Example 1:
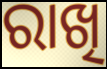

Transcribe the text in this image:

ରାଖି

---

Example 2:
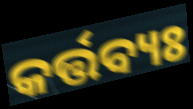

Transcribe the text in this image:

କର୍ତ୍ତବ୍ୟଃ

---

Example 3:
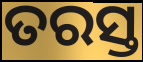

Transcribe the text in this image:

ତରସ୍ତ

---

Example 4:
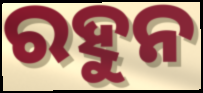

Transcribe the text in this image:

ରହୁନ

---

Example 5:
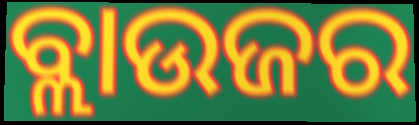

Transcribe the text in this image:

ବ୍ଲାଉଜର